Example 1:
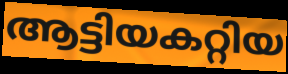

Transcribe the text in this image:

ആട്ടിയകറ്റിയ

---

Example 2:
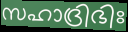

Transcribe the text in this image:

സഹാദ്രിഭിഃ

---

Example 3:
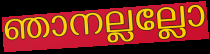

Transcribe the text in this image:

ഞാനല്ലല്ലോ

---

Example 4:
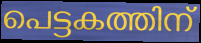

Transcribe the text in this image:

പെട്ടകത്തിന്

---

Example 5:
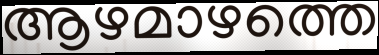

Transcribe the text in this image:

ആഴമാഴത്തെ